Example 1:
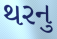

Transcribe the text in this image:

થરનુ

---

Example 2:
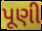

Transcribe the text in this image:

પૂણી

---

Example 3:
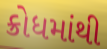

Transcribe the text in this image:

ક્રોધમાંથી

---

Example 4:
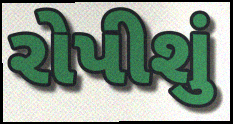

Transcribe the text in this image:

રોપીશું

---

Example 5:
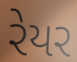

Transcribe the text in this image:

રેયર